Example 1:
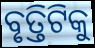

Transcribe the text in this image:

ବୃତ୍ତିଟିକୁ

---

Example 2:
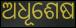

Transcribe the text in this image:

ଅଧୂଶେଷ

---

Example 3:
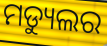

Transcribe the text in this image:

ମଡ୍ୟୁଲର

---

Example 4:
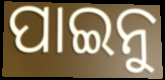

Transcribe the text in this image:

ପାଇନୁ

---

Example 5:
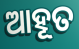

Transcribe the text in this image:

ଆହୂତ